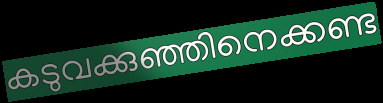
കടുവക്കുഞ്ഞിനെക്കണ്ട